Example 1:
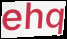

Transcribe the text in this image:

ehq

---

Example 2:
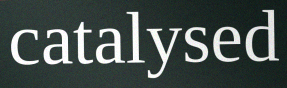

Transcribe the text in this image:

catalysed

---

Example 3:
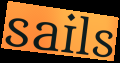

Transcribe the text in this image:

sails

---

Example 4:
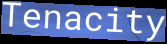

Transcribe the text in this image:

Tenacity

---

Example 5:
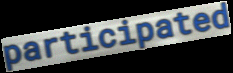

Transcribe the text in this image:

participated